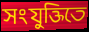
সংযুক্তিতে